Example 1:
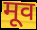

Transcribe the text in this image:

मूव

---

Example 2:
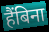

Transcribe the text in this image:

हैंबिना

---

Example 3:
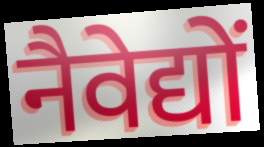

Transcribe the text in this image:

नैवेद्यों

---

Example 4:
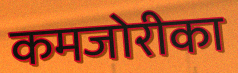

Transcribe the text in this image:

कमजोरीका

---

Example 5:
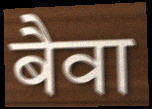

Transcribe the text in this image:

बैवा